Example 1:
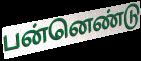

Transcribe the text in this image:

பன்னெண்டு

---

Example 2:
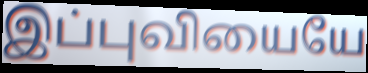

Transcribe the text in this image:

இப்புவியையே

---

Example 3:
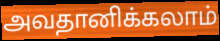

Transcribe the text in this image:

அவதானிக்கலாம்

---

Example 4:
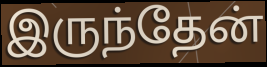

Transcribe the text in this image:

இருந்தேன்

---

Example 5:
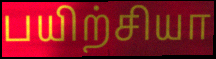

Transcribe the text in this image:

பயிற்சியா